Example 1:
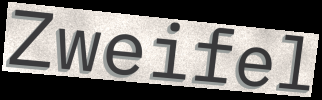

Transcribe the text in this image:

Zweifel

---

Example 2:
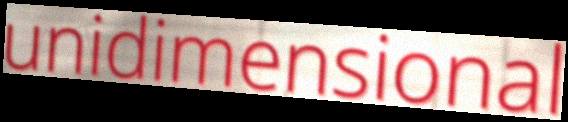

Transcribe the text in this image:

unidimensional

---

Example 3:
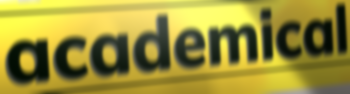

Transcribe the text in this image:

academical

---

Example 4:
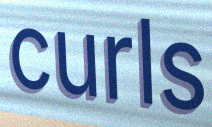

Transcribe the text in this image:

curls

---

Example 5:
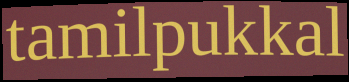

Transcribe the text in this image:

tamilpukkal